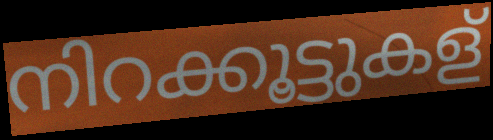
നിറക്കൂട്ടുകള്